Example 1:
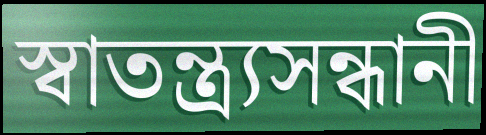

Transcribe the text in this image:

স্বাতন্ত্র্যসন্ধানী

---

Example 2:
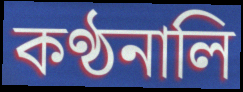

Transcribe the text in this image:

কণ্ঠনালি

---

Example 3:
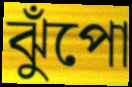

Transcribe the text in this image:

ঝুঁপো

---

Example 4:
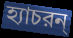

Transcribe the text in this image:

হ্যাচরন্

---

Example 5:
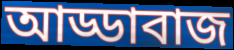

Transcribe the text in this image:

আড্ডাবাজ